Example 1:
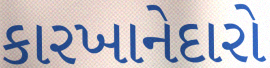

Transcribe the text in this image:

કારખાનેદારો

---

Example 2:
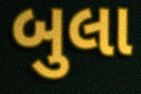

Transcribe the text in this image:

બુલા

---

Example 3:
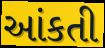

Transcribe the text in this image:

આંકતી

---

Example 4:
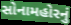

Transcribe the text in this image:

સોનામહોરનું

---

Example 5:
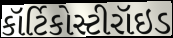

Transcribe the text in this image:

કૉર્ટિકોસ્ટીરૉઇડ